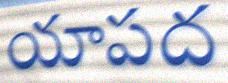
యాపద